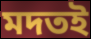
মদতই